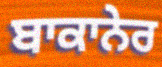
ਬਾਕਾਨੇਰ